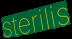
sterilis